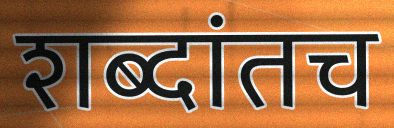
शब्दांतच